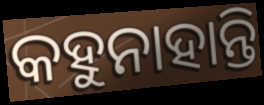
କହୁନାହାନ୍ତି